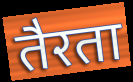
तैरता